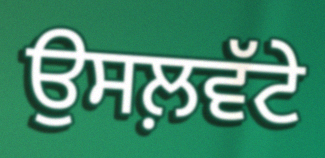
ਉਸਲ਼ਵੱਟੇ